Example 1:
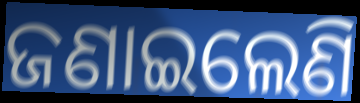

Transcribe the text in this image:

ଜଣାଇଲେଣି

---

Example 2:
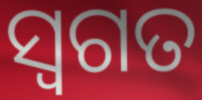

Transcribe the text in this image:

ସ୍ଵଗତ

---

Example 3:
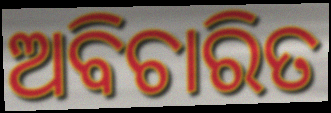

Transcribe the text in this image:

ଅବିଚାରିତ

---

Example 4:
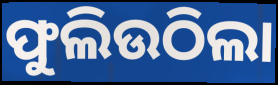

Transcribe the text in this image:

ଫୁଲିଉଠିଲା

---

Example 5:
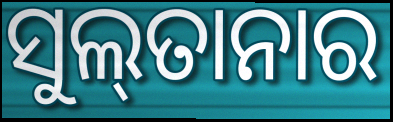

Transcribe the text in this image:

ସୁଲ୍‌ତାନାର